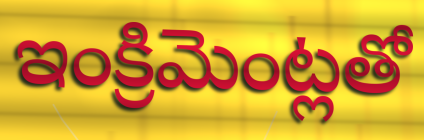
ఇంక్రిమెంట్లతో